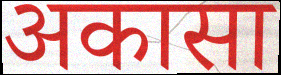
अकासा